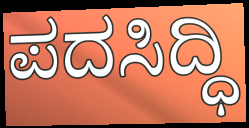
ಪದಸಿದ್ಧಿ